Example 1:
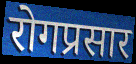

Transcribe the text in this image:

रोगप्रसार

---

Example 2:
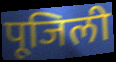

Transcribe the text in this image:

पूजिली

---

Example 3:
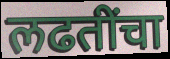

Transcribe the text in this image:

लढतींचा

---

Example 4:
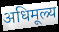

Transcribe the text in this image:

अधिमूल्य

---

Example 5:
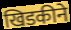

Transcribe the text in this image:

खिडकीने